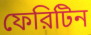
ফেরিটিন